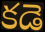
కడె